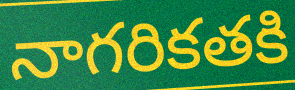
నాగరికతకి